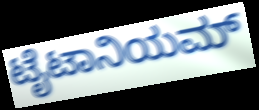
ಟೈಟಾನಿಯಮ್